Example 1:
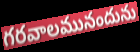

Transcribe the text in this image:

గరవాలమునందును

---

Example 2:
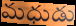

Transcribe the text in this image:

మధుడు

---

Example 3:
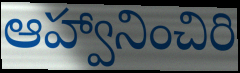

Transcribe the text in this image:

ఆహ్వానించిరి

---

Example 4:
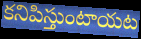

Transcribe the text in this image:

కనిపిస్తుంటాయట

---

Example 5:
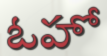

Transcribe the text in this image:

ఓహో